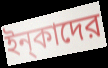
ইন্‌কাদের